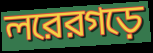
লরেরগড়ে